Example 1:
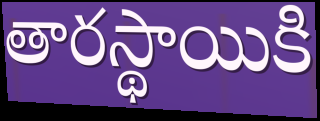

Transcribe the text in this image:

తారస్థాయికి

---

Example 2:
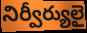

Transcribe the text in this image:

నిర్వీర్యులై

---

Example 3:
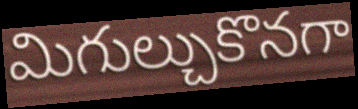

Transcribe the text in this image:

మిగుల్చుకొనగా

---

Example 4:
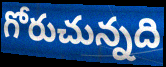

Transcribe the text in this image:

గోరుచున్నది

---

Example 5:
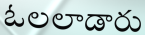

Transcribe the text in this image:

ఓలలాడారు